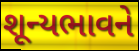
શૂન્યભાવને